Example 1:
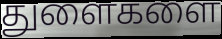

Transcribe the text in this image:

துளைகளை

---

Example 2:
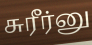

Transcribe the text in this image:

சுரீர்னு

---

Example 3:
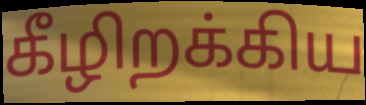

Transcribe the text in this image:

கீழிறக்கிய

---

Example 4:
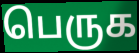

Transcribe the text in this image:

பெருக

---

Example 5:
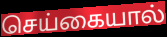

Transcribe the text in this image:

செய்கையால்